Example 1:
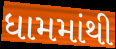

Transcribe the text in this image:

ધામમાંથી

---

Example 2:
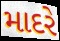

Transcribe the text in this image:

માદરે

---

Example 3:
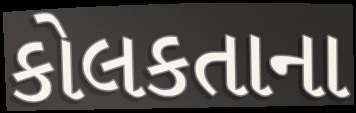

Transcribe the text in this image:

કોલકતાના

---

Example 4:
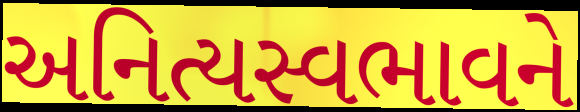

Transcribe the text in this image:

અનિત્યસ્વભાવને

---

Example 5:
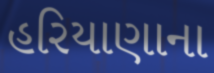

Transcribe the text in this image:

હરિયાણાના